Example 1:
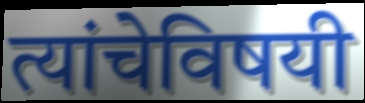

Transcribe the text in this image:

त्यांचेविषयी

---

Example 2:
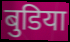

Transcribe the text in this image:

बुडिया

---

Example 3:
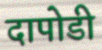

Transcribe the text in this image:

दापोडी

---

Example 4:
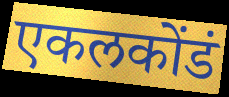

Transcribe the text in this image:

एकलकोंडं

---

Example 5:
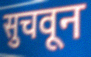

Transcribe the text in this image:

सुचवून